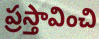
ప్రస్తావించి